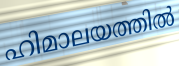
ഹിമാലയത്തിൽ